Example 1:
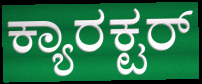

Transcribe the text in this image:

ಕ್ಯಾರಕ್ಟರ್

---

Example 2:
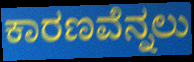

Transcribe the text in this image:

ಕಾರಣವೆನ್ನಲು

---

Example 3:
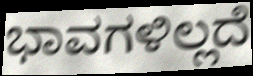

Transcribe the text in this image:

ಭಾವಗಳಿಲ್ಲದೆ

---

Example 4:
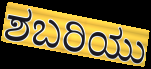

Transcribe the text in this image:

ಶಬರಿಯು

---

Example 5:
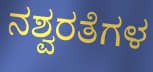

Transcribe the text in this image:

ನಶ್ವರತೆಗಳ